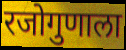
रजोगुणाला